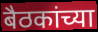
बैठकांच्या